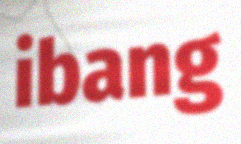
ibang